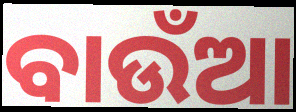
ବାଉଁଆ